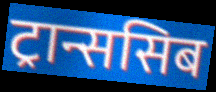
ट्रान्ससिब